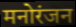
मनोरंजन